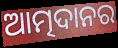
ଆତ୍ମଦାନର